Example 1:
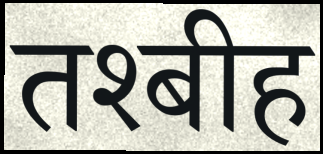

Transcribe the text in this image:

तश्बीह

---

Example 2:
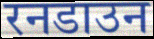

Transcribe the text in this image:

रनडाउन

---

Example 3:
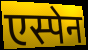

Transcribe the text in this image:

एस्पेन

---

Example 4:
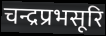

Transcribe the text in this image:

चन्द्रप्रभसूरि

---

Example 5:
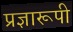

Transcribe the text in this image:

प्रज्ञारूपी